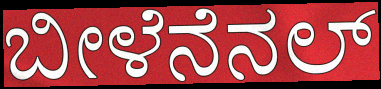
ಬೀಳೆನೆನಲ್